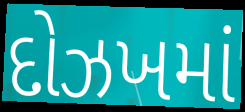
દોઝખમાં